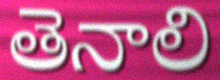
తెనాలి